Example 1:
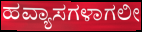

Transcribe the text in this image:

ಹವ್ಯಾಸಗಳಾಗಲೀ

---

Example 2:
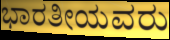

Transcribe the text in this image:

ಭಾರತೀಯವರು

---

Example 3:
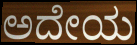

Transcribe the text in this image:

ಅದೇಯ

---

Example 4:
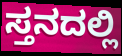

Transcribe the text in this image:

ಸ್ತನದಲ್ಲಿ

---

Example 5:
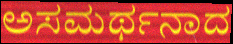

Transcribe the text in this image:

ಅಸಮರ್ಥನಾದ